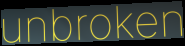
unbroken